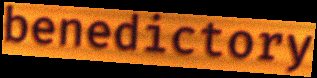
benedictory